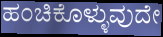
ಹಂಚಿಕೊಳ್ಳುವುದೇ